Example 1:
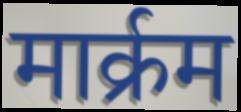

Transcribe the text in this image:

मार्क्रम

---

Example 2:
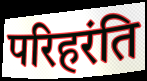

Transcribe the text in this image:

परिहरंति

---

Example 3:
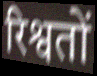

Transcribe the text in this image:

रिश्वतों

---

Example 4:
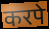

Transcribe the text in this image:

करपे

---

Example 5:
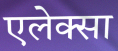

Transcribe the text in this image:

एलेक्सा